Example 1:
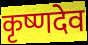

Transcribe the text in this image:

कृष्‍णदेव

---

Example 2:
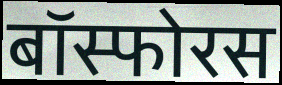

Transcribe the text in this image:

बॉस्फोरस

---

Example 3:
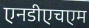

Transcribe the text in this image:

एनडीएचएम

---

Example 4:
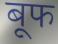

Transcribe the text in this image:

बूफ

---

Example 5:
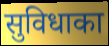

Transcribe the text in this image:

सुविधाका